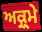
ਅਕ੍ਰ੍ਮੇ